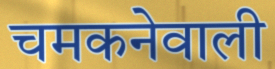
चमकनेवाली